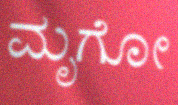
ಮೃಗೋ